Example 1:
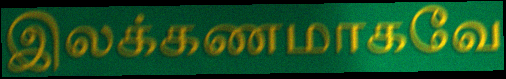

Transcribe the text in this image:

இலக்கணமாகவே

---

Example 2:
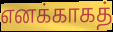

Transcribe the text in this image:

எனக்காகத்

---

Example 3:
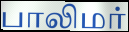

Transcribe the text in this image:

பாலிமர்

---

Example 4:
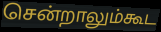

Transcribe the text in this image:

சென்றாலும்கூட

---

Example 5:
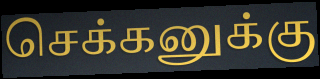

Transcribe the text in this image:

செக்கனுக்கு